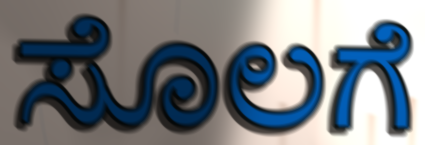
ಸೊಲಗೆ